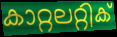
കാറ്റലറ്റിക്